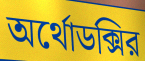
অর্থোডক্সির